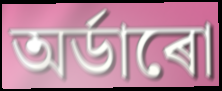
অৰ্ডাৰো